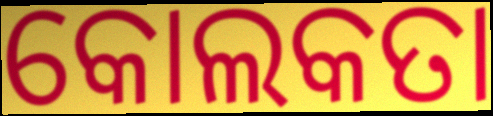
କୋଲକତା